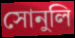
সোনুলি